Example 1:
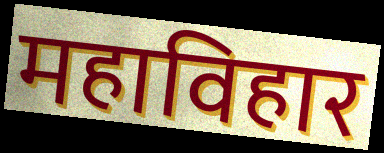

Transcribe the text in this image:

महाविहार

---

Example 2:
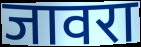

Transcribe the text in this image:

जावरा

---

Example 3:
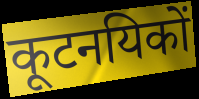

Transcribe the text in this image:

कूटनयिकों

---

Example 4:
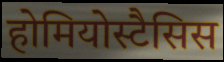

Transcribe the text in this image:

होमियोस्टैसिस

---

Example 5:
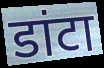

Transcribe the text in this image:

डांटा